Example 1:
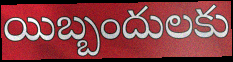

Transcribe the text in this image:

యిబ్బందులకు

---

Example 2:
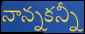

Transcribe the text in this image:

నాన్నకన్నీ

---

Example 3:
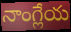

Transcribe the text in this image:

నాంగ్లేయ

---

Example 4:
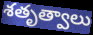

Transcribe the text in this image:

శతృత్వాలు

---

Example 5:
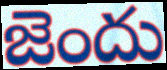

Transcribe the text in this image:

జెందు